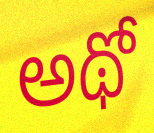
అథో